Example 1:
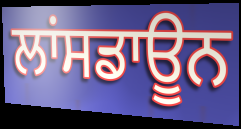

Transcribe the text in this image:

ਲਾਂਸਡਾਊਨ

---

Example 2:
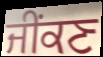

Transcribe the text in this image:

ਜੀਂਕਣ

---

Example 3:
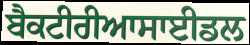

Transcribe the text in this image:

ਬੈਕਟੀਰੀਆਸਾਈਡਲ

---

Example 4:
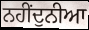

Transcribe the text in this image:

ਨਹੀਂਦੁਨੀਆ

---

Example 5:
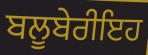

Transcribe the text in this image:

ਬਲੂਬੇਰੀਇਹ